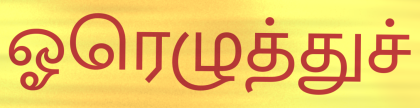
ஓரெழுத்துச்